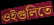
ওইগুলিতে